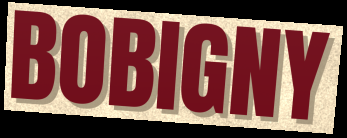
BOBIGNY